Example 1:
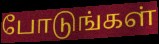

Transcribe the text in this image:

போடுங்கள்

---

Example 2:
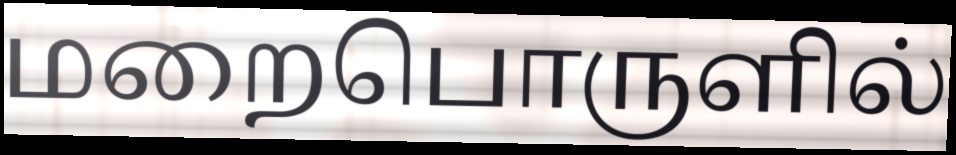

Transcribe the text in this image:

மறைபொருளில்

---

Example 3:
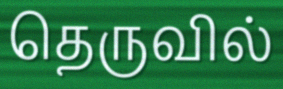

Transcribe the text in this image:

தெருவில்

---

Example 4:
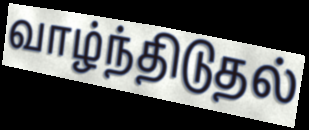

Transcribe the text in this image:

வாழ்ந்திடுதல்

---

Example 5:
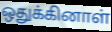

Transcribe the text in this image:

ஒதுக்கினாள்